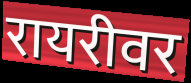
रायरीवर